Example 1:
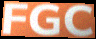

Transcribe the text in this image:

FGC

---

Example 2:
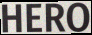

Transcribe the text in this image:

HERO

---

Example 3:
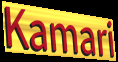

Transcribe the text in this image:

Kamari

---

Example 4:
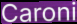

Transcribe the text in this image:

Caroni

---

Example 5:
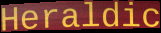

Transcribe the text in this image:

Heraldic